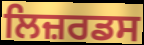
ਲਿਜ਼ਰਡਸ